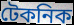
টেকনিক